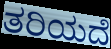
ತರಿಯದೆ